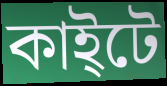
কাই্টে